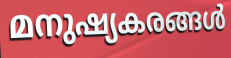
മനുഷ്യകരങ്ങൾ